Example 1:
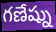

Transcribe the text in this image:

గణేష్ను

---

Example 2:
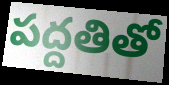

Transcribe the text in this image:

పద్దతితో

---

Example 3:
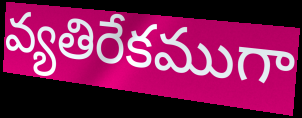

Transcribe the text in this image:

వ్యతిరేకముగా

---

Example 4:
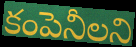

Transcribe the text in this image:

కంపెనీలని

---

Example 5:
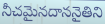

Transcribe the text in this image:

నీచమైనదాననైతిని